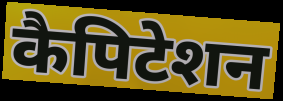
कैपिटेशन